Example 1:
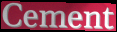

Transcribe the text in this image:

Cement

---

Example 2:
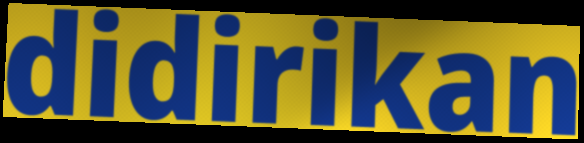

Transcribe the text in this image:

didirikan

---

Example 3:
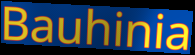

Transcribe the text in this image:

Bauhinia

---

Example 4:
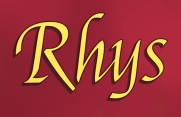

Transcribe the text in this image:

Rhys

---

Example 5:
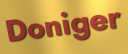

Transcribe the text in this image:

Doniger